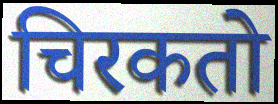
चिरकतो